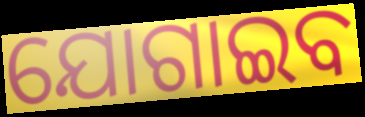
ଯୋଗାଇବ